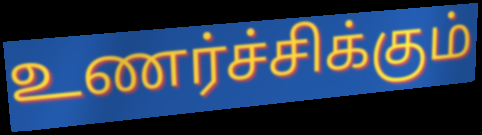
உணர்ச்சிக்கும்